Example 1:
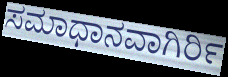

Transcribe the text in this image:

ಸಮಾಧಾನವಾಗಿರ್ರಿ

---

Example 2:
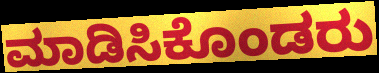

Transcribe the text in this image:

ಮಾಡಿಸಿಕೊಂಡರು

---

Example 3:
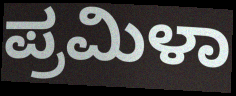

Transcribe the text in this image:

ಪ್ರಮಿಳಾ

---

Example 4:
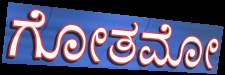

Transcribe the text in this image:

ಗೋತಮೋ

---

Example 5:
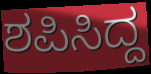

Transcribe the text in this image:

ಶಪಿಸಿದ್ದ